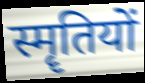
स्मॄतियों